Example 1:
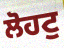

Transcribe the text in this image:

ਲੋਹਟੁ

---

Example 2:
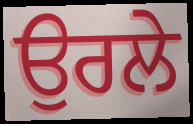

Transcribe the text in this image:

ਉਰਲੇ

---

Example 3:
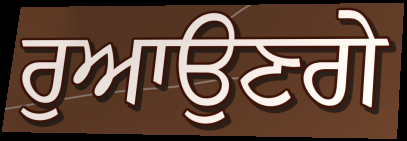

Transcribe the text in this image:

ਰੁਆਉਣਗੇ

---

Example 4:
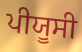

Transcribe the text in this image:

ਪੀਯੂਸੀ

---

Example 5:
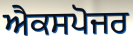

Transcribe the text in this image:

ਐਕਸਪੋਜਰ